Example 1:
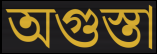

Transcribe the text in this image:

অগুস্তা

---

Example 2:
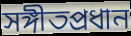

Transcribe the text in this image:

সঙ্গীতপ্রধান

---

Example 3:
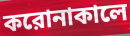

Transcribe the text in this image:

করোনাকালে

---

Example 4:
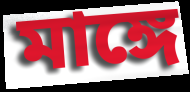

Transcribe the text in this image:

মাঙ্গে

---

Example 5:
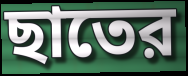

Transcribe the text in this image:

ছাতের